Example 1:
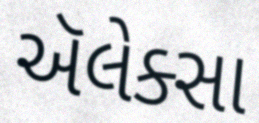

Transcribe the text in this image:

ઍલેક્સા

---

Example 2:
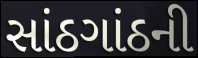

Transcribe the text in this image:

સાંઠગાંઠની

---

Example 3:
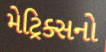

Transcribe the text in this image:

મેટ્રિક્સનો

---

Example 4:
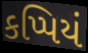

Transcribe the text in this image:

કપ્પિયં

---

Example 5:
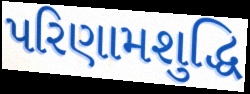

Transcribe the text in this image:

પરિણામશુદ્ધિ